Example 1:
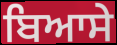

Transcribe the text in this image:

ਬਿਆਸੇ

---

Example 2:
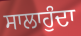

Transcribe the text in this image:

ਸਾਲਾਹੁੰਦਾ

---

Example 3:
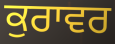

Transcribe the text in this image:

ਕੁਰਾਵਰ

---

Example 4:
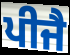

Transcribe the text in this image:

ਪੀਜੈ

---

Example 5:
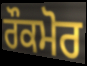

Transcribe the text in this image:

ਰੌਕਮੋਰ